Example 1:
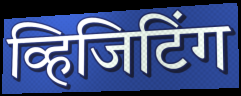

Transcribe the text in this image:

व्हिजिटिंग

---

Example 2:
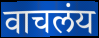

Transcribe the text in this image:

वाचलंय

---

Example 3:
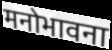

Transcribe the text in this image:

मनोभावना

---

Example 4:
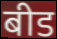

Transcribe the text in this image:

बीड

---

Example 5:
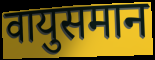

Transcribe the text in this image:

वायुसमान